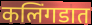
कलिंगडात